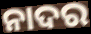
ନାଦର